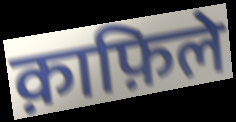
क़ाफ़िले